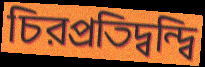
চিরপ্রতিদ্বন্দ্বি